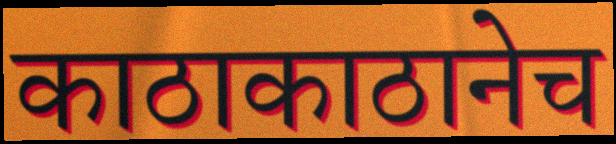
काठाकाठानेच